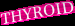
THYROID